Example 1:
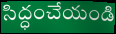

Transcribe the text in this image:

సిద్ధంచేయండి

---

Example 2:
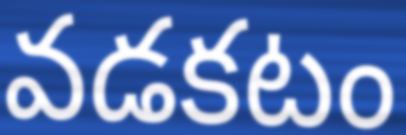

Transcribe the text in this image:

వడకటం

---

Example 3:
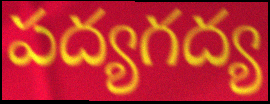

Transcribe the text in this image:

పద్యగద్య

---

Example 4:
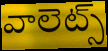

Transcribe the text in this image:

వాలెట్స్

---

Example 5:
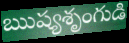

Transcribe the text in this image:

ఋష్యశృంగుడి